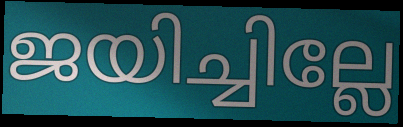
ജയിച്ചില്ലേ